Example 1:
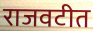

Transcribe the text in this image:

राजवटीत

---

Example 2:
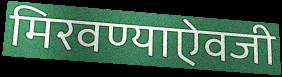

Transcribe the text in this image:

मिरवण्याऐवजी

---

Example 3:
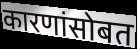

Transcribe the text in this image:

कारणांसोबत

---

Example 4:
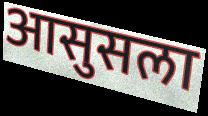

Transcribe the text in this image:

आसुसला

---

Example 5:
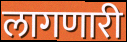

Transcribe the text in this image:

लागणारी